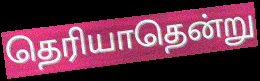
தெரியாதென்று